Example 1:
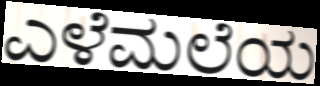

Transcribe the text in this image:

ಎಳೆಮಲೆಯ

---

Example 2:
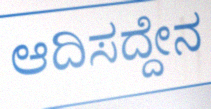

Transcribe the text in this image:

ಆದಿಸದ್ದೇನ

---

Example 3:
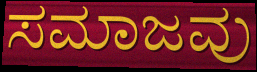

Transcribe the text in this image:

ಸಮಾಜವು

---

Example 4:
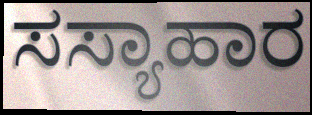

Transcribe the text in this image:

ಸಸ್ಯಾಹಾರ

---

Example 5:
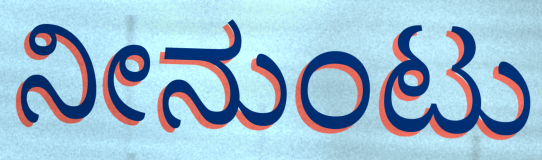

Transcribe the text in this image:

ನೀನುಂಟು